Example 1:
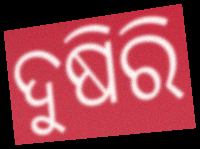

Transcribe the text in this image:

ଦୁଷିରି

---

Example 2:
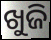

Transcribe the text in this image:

ଖୁଜି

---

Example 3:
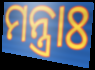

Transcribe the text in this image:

ମନ୍ତ୍ରାଃ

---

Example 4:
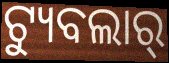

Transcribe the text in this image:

ଟ୍ୟୁବଲାର୍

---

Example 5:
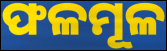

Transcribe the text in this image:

ଫଳମୂଳ